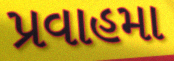
પ્રવાહમા